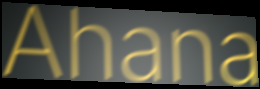
Ahana